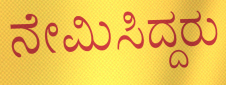
ನೇಮಿಸಿದ್ದರು